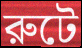
রুটে